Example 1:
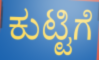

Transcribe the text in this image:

ಕುಟ್ಟಿಗೆ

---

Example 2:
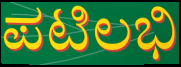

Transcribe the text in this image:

ಪಟಿಲಭಿ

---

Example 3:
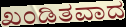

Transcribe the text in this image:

ಖಂಡಿತವಾದ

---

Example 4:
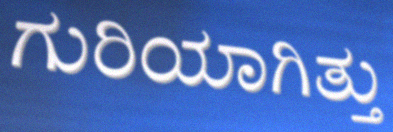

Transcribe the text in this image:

ಗುರಿಯಾಗಿತ್ತು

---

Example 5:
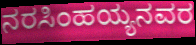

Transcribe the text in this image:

ನರಸಿಂಹಯ್ಯನವರ